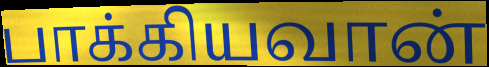
பாக்கியவான்